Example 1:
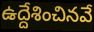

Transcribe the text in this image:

ఉద్దేశించినవే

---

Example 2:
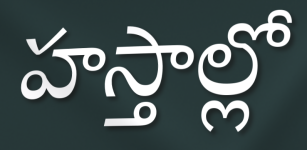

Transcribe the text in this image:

హస్తాల్లో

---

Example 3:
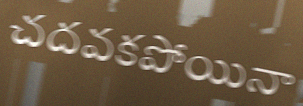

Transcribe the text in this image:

చదవకపోయినా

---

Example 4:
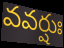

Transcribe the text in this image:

వవర్షుః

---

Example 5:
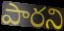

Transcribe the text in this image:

పారని